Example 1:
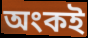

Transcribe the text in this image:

অংকই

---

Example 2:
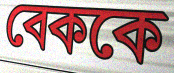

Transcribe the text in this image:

বেককে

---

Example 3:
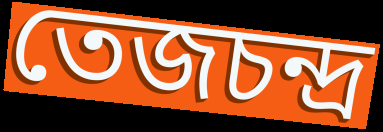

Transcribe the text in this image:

তেজচন্দ্র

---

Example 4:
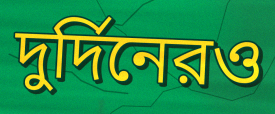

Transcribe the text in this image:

দুর্দিনেরও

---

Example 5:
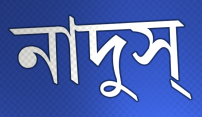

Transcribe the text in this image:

নাদুস্